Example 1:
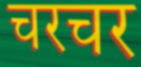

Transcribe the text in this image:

चरचर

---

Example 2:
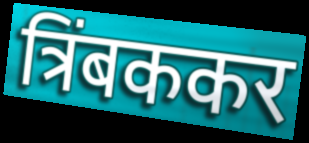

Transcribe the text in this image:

त्रिंबककर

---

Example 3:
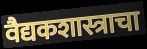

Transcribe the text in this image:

वैद्यकशास्त्राचा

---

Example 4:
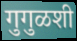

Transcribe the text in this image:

गुगुळशी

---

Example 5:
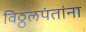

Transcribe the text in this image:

विठ्ठलपंतांना